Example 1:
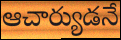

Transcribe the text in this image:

ఆచార్యుడనే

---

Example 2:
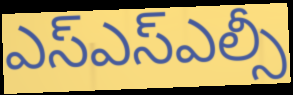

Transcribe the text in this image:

ఎస్ఎస్ఎల్సీ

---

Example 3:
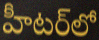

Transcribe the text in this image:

హీటర్‌లో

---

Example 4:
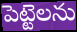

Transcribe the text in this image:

పెట్టెలను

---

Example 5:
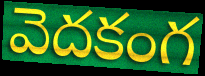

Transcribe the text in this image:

వెదకంగ